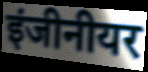
इंजीनीयर